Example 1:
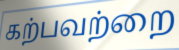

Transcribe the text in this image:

கற்பவற்றை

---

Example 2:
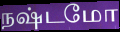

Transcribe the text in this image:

நஷ்டமோ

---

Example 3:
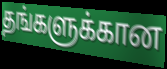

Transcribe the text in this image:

தங்களுக்கான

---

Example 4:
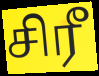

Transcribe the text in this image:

சிரீ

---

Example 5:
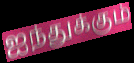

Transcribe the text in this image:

ஐந்துக்கும்